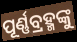
ପୂର୍ଣ୍ଣବ୍ରହ୍ମଙ୍କୁ